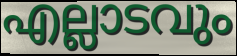
എല്ലാടവും